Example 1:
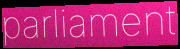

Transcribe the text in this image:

parliament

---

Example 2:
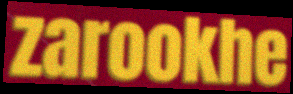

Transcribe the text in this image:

zarookhe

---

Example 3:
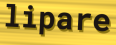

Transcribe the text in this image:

lipare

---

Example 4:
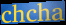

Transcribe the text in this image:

chcha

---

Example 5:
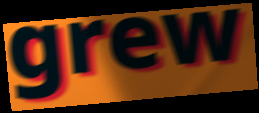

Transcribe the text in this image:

grew